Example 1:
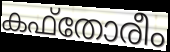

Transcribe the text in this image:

കഫ്തോരീം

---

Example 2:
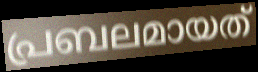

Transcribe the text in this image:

പ്രബലമായത്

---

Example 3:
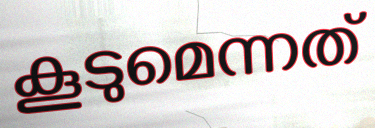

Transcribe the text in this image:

കൂടുമെന്നത്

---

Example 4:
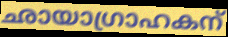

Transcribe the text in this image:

ഛായാഗ്രാഹകന്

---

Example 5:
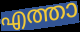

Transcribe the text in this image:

എത്താ